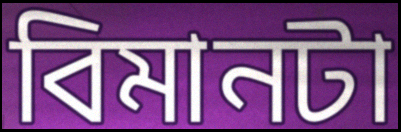
বিমানটা